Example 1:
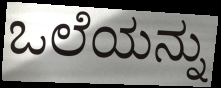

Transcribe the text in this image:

ಒಲೆಯನ್ನು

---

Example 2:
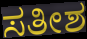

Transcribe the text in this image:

ಸತೀಶ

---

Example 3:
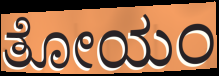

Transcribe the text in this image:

ತೋಯಂ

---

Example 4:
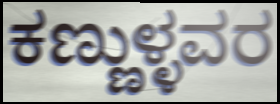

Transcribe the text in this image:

ಕಣ್ಣುಳ್ಳವರ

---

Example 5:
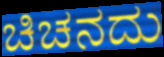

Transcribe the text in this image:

ಚಿಚನದು